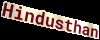
Hindusthan